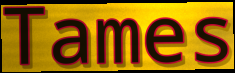
Tames